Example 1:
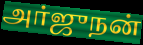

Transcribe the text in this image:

அர்ஜுநன்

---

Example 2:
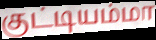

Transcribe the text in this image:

குட்டியம்மா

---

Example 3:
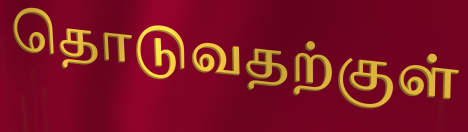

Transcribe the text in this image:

தொடுவதற்குள்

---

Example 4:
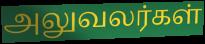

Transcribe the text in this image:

அலுவலர்கள்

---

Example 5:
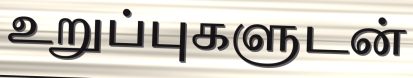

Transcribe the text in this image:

உறுப்புகளுடன்